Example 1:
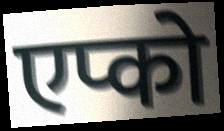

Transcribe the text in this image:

एप्को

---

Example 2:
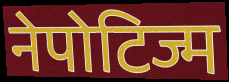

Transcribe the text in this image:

नेपोटिज्म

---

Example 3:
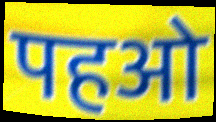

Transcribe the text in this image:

पहओ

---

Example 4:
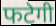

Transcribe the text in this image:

फटेगी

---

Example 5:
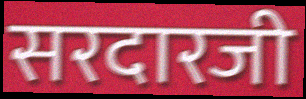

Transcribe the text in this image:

सरदारजी